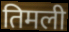
तिमली